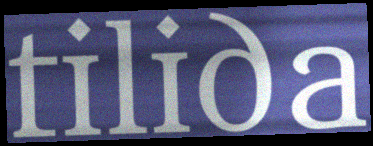
tilida